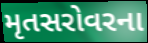
મૃતસરોવરના